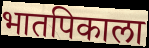
भातपिकाला